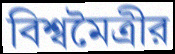
বিশ্বমৈত্রীর